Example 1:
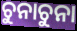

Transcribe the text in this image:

ଚୁନାଚୁନା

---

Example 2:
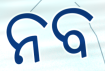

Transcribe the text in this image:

ନବ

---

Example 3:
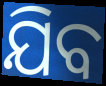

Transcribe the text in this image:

ଯିବ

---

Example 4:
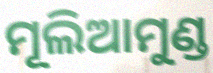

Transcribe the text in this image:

ମୂଲିଆମୁଣ୍ଡ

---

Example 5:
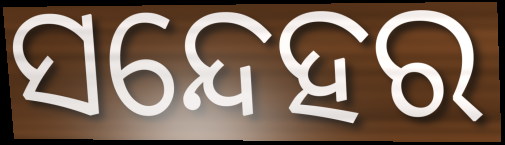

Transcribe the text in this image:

ସନ୍ଦେହର